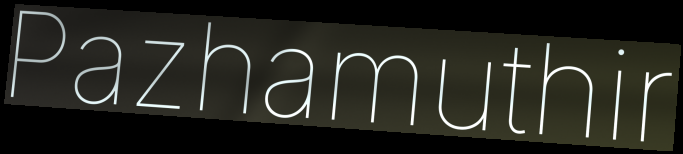
Pazhamuthir